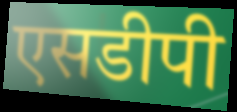
एसडीपी